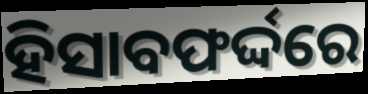
ହିସାବଫର୍ଦ୍ଦରେ